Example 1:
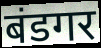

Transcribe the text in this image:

बंडगर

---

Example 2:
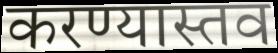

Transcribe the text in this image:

करण्यास्तव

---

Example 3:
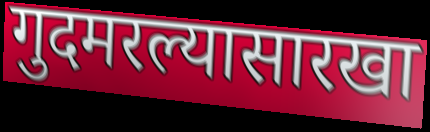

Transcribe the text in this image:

गुदमरल्यासारखा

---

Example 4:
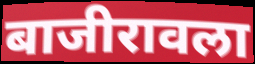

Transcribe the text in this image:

बाजीरावला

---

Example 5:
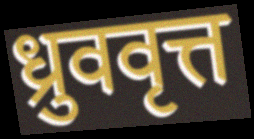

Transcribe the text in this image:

ध्रुववृत्त